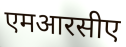
एमआरसीए